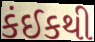
કંઈકથી